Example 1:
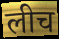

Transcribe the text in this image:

लीच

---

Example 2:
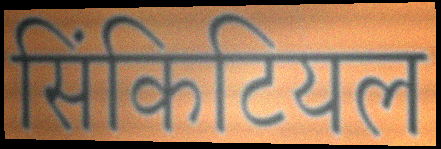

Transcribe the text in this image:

सिंकिटियल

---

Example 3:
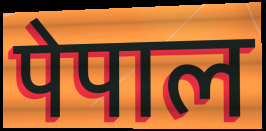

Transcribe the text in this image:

पेपाल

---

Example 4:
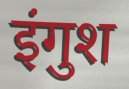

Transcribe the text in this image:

इंगुश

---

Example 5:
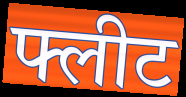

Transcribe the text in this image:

फ्लीट